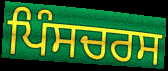
ਪਿੰਸਚਰਸ